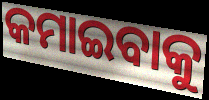
କମାଇବାକୁ